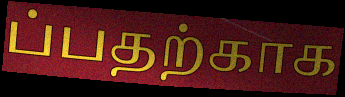
ப்பதற்காக